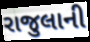
રાજુલાની